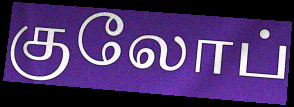
குலோப்